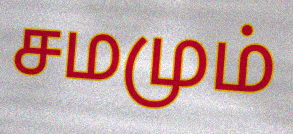
சமமும்